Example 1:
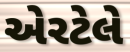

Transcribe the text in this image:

એરટેલે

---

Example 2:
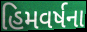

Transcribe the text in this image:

હિમવર્ષના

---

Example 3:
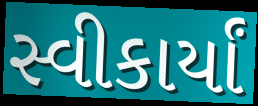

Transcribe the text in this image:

સ્વીકાર્યાં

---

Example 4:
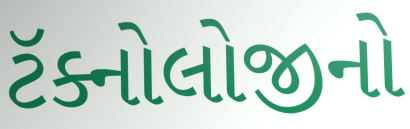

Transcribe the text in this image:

ટૅક્નોલોજીનો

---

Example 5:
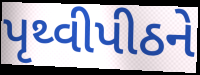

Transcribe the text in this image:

પૃથ્વીપીઠને